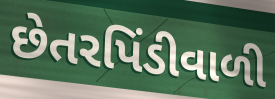
છેતરપિંડીવાળી